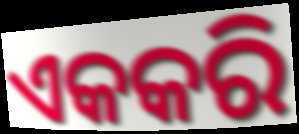
ଏକକରି